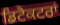
ਡਿਟੈਕਟਰਾਂ